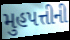
મુહપત્તીની